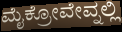
ಮೈಕ್ರೋವೇವ್ನಲ್ಲಿ